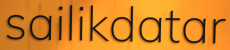
sailikdatar